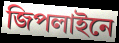
জিপলাইনে